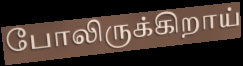
போலிருக்கிறாய்